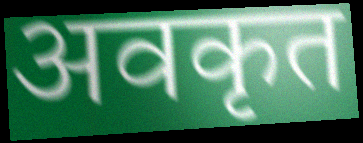
अवकृत